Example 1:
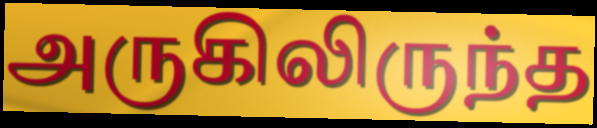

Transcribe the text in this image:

அருகிலிருந்த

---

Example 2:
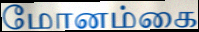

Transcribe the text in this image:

மோனம்கை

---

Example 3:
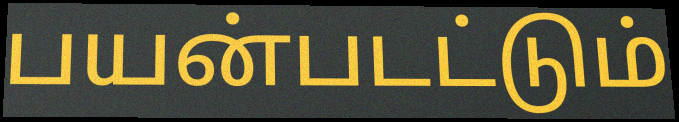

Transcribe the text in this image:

பயன்படட்டும்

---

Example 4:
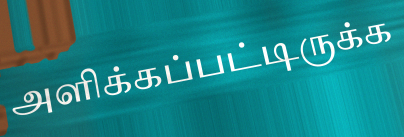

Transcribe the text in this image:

அளிக்கப்பட்டிருக்க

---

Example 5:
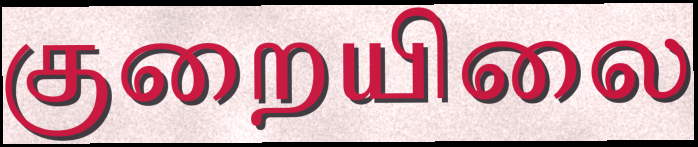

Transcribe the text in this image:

குறையிலை